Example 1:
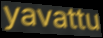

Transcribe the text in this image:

yavattu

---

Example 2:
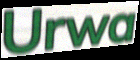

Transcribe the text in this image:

Urwa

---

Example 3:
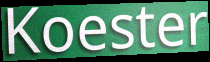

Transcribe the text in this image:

Koester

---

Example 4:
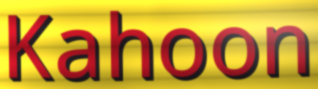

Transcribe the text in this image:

Kahoon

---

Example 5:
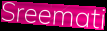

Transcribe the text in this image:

Sreemati